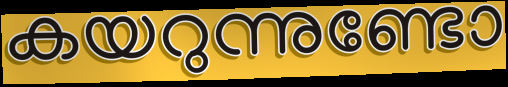
കയറുന്നുണ്ടോ